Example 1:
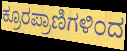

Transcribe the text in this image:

ಕ್ರೂರಪ್ರಾಣಿಗಳಿಂದ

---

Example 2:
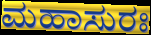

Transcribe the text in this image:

ಮಹಾಸುರಃ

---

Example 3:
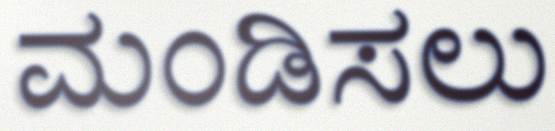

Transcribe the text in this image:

ಮಂಡಿಸಲು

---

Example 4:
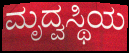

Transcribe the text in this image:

ಮೃದ್ವಸ್ಥಿಯ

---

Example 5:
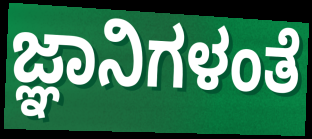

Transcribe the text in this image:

ಜ್ಞಾನಿಗಳಂತೆ